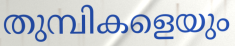
തുമ്പികളെയും